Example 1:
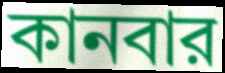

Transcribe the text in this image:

কানবার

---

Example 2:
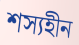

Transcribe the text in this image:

শস্যহীন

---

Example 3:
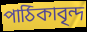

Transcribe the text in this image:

পাঠিকাবৃন্দ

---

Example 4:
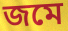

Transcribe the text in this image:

জমে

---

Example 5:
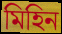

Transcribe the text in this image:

মিহিন